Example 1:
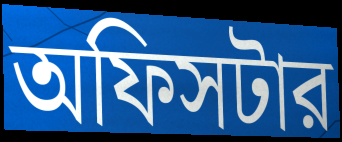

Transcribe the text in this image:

অফিসটার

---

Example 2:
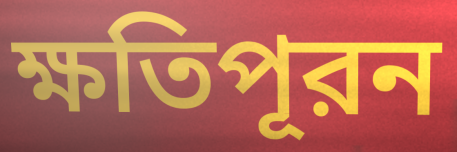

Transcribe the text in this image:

ক্ষতিপূরন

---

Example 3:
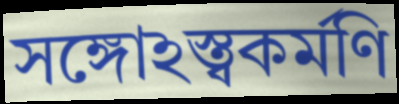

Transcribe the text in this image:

সঙ্গোঽস্ত্বকর্মণি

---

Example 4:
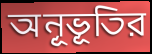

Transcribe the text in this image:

অনূভূতির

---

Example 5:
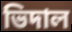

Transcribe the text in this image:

ভিদাল